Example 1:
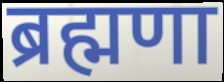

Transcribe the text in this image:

ब्रह्मणा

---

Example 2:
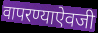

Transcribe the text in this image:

वापरण्याऐवजी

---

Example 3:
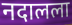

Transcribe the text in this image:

नदालला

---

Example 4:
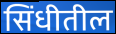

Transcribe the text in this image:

सिंधीतील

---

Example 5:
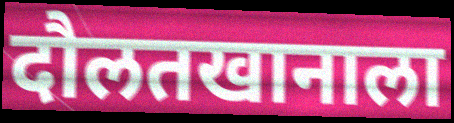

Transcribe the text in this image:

दौलतखानाला